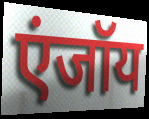
एंजॉय